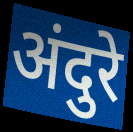
अंदुरे